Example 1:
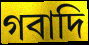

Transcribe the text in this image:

গবাদি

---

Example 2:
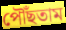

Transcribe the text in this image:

পৌঁছতাম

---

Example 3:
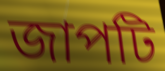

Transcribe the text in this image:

জাপটি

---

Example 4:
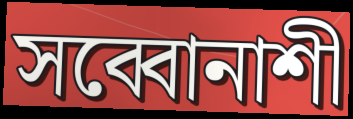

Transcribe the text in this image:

সব্বোনাশী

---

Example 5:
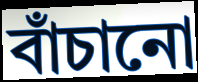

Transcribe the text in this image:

বাঁচানো